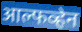
आल्फव्हेन